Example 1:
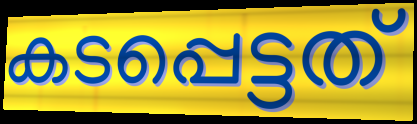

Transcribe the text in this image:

കടപ്പെട്ടത്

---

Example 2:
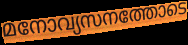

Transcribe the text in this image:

മനോവ്യസനത്തോടെ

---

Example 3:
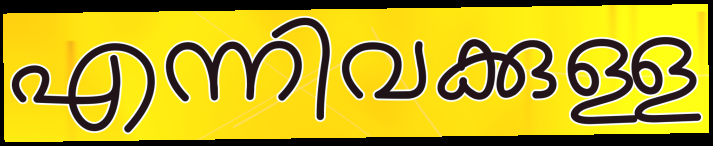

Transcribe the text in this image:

എന്നിവക്കുള്ള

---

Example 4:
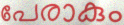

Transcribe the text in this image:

പേരാകും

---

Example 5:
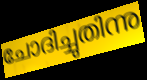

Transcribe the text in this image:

ചോദിച്ചുതിന്നു